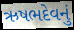
ઋષભદેવનું